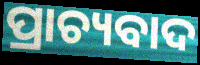
ପ୍ରାଚ୍ୟବାଦ